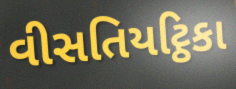
વીસતિયટ્ઠિકા